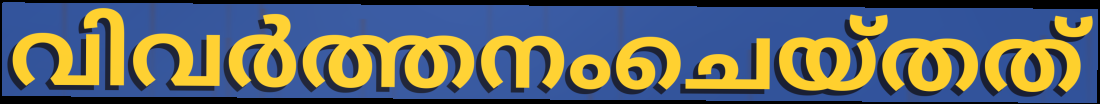
വിവർത്തനംചെയ്തത്